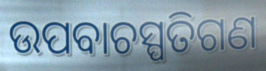
ଉପବାଚସ୍ପତିଗଣ